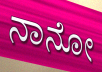
ನಾನೋ